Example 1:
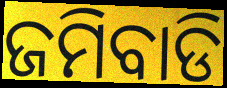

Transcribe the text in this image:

ଜମିବାଡି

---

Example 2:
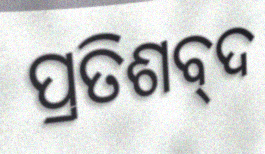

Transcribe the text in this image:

ପ୍ରତିଶବ୍‌ଦ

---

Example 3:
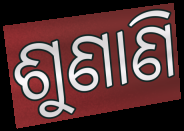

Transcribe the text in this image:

ଶୁଣାଣି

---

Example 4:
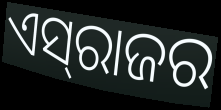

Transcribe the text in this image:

ଏସ୍‍ରାଜର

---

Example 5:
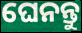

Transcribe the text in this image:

ଘେନନ୍ତୁ